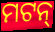
ମଟନ୍